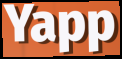
Yapp